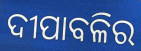
ଦୀପାବଳିର